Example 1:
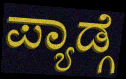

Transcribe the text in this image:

ಪ್ಯಾಡ್ಗೆ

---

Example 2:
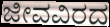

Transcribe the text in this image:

ಜೀವವಿರದ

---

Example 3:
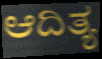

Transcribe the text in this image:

ಆದಿತ್ಯ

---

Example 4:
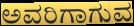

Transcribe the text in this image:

ಅವರಿಗಾಗುವ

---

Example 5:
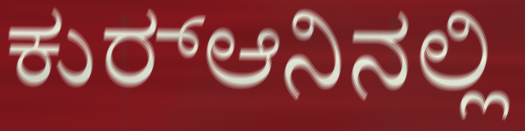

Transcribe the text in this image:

ಕುರ್‍ಆನಿನಲ್ಲಿ